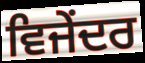
ਵਿਜੇਂਦਰ